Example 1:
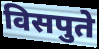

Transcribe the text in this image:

विसपुते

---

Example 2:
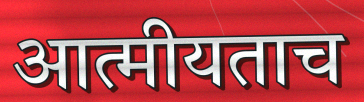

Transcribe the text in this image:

आत्मीयताच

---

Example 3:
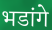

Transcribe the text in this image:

भडांगे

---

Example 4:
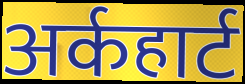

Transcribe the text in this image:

अर्कहार्ट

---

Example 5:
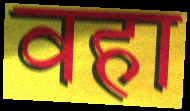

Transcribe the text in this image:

वहा